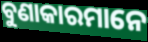
ବୁଣାକାରମାନେ